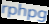
rphpg